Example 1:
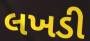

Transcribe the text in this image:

લખડી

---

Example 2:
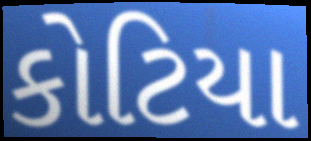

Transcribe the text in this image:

કોટિયા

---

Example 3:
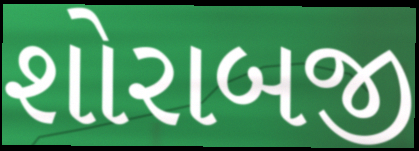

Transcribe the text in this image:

શોરાબજી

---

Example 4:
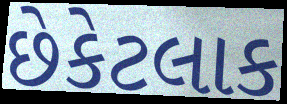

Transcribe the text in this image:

છેકેટલાક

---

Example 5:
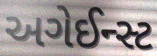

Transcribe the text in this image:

અગેઈન્સ્ટ